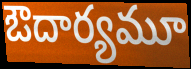
ఔదార్యమూ